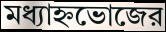
মধ্যাহ্নভোজের